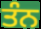
ਤੰਨ